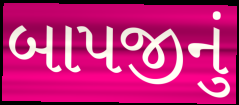
બાપજીનું